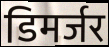
डिमर्जर